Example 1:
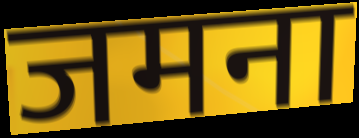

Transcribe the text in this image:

जमना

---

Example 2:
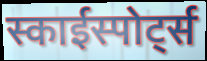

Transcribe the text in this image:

स्काईस्पोर्ट्स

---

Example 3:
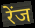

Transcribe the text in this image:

रेंज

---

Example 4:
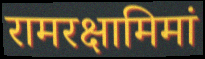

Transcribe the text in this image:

रामरक्षामिमां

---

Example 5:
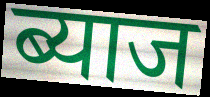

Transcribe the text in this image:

ब्याज